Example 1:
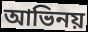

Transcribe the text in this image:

আভিনয়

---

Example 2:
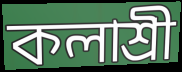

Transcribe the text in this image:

কলাশ্রী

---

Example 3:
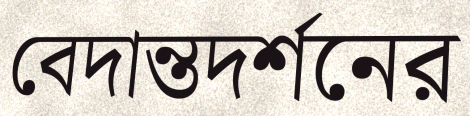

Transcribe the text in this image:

বেদান্তদর্শনের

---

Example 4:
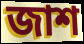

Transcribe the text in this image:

জাশ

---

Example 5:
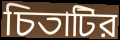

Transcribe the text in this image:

চিতাটির